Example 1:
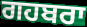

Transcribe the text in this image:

ਗਹਬਰਾ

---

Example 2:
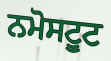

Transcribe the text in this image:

ਨਮੋਸਟੂਟ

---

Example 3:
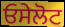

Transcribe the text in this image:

ਓਸੇਲੋਟ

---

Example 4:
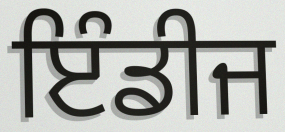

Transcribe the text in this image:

ਇੰਡੀਜ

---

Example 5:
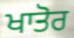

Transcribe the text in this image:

ਖਾਤੋਰ